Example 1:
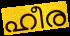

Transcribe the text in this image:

ഹീര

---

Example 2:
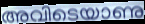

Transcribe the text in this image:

അവിടെയാണു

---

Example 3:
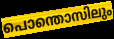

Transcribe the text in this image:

പൊന്തൊസിലും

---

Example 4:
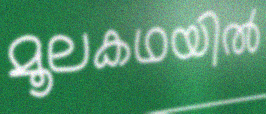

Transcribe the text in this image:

മൂലകഥയിൽ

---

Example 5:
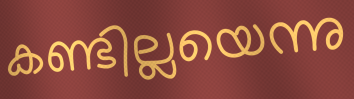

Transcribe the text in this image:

കണ്ടില്ലയെന്നു